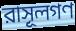
রাসূলগণ